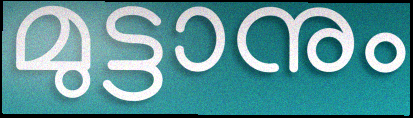
മുട്ടാനും